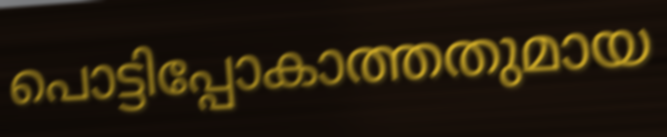
പൊട്ടിപ്പോകാത്തതുമായ